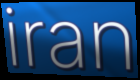
iran